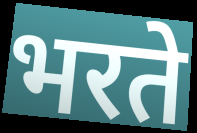
भरते